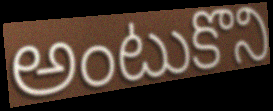
అంటుకొని